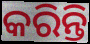
କରିନ୍ତି